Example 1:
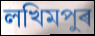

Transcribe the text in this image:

লখিমপুৰ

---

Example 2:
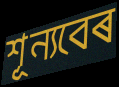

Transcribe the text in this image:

শূন্যবেৰ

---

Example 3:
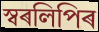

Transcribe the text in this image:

স্বৰলিপিৰ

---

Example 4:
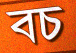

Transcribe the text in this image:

বচ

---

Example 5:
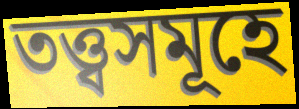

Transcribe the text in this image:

তত্ত্বসমূহে